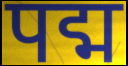
पद्म